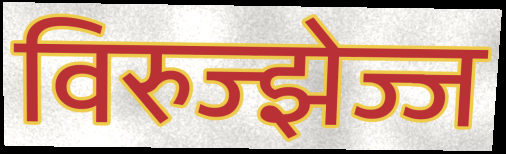
विरुज्झेज्ज